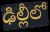
ఢిల్లీలో